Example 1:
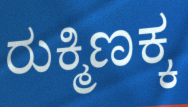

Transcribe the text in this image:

ರುಕ್ಮಿಣಕ್ಕ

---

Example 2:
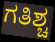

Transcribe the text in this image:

ಗತಿಶ್ಚ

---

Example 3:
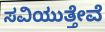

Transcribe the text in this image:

ಸವಿಯುತ್ತೇವೆ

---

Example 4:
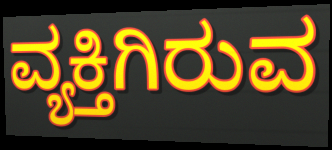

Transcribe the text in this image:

ವ್ಯಕ್ತಿಗಿರುವ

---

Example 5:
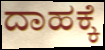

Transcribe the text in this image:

ದಾಹಕ್ಕೆ